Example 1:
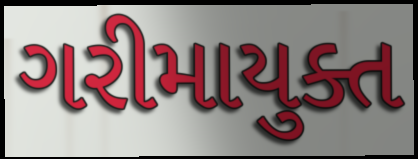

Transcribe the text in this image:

ગરીમાયુક્ત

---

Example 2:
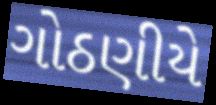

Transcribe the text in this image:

ગોઠણીયે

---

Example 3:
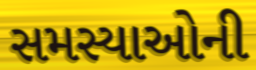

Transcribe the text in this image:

સમસ્યાઓની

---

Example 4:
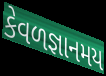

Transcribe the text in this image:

કેવળજ્ઞાનમય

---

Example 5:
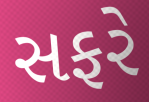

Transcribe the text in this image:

સફરે